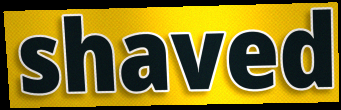
shaved